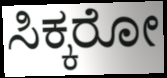
ಸಿಕ್ಕರೋ